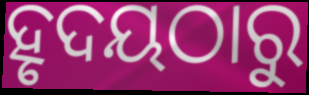
ହୃଦୟଠାରୁ